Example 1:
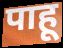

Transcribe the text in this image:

पाहू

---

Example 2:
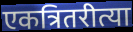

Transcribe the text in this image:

एकत्रितरीत्या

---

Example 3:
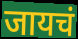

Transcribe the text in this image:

जायचं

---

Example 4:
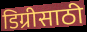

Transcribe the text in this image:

डिग्रीसाठी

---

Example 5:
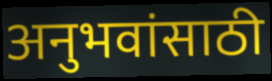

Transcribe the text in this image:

अनुभवांसाठी